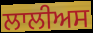
ਲਾਲੀਅਸ